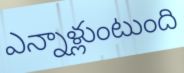
ఎన్నాళ్లుంటుంది